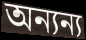
অন্যন্য